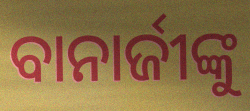
ବାନାର୍ଜୀଙ୍କୁ